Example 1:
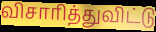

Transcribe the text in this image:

விசாரித்துவிட்டு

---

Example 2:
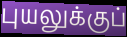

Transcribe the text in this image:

புயலுக்குப்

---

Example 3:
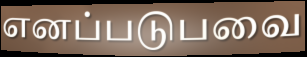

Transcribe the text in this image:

எனப்படுபவை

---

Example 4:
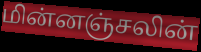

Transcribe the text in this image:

மின்னஞ்சலின்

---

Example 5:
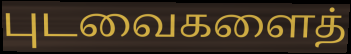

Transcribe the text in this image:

புடவைகளைத்